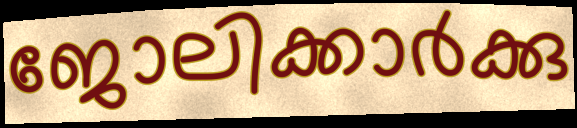
ജോലിക്കാർക്കു